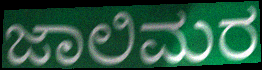
ಜಾಲಿಮರ